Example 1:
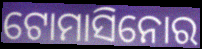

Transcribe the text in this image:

ଟୋମାସିନୋର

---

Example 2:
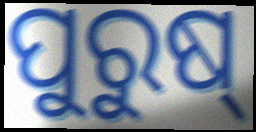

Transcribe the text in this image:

ପୁରୁଷ୍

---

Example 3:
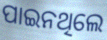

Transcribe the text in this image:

ପାଇନଥିଲେ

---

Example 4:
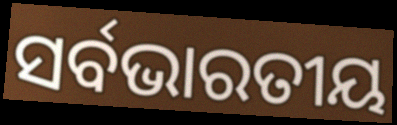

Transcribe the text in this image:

ସର୍ବଭାରତୀୟ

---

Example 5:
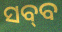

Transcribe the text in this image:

ସବ୍‌ବ